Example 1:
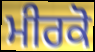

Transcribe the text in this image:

ਮੀਰਕੋ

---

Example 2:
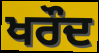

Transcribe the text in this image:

ਖਰੌਦ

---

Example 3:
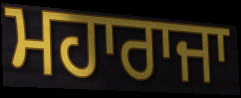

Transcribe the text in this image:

ਮਹਾਰਾਜਾ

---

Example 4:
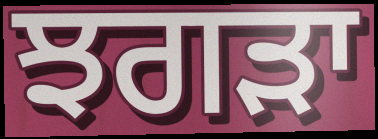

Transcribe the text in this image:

ਝਗੜਾ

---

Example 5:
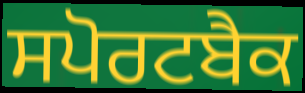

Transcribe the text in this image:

ਸਪੋਰਟਬੈਕ